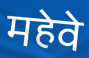
महेवे